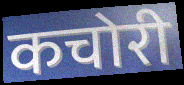
कचोरी